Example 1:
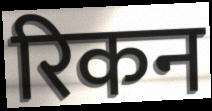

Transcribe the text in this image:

रिकन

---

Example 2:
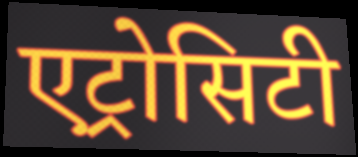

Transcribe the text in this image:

एट्रोसिटी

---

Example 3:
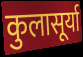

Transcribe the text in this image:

कुलासूर्या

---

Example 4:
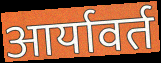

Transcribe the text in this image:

आर्यावर्त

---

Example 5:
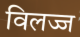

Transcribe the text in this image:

विलज्ज